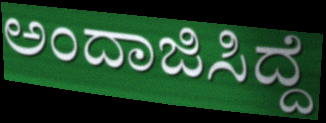
ಅಂದಾಜಿಸಿದ್ದೆ